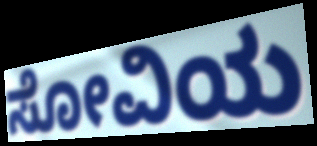
ಸೋವಿಯ